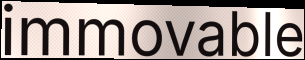
immovable